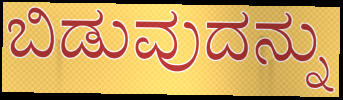
ಬಿಡುವುದನ್ನು